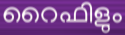
റൈഫിളും